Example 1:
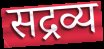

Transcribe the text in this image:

सद्रव्य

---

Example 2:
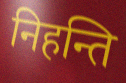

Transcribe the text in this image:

निहन्ति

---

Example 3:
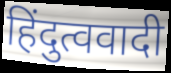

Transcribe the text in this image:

हिंदुत्ववादी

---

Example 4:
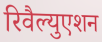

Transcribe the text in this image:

रिवैल्युएशन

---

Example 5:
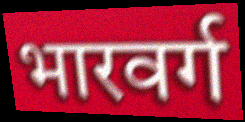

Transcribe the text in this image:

भारवर्ग